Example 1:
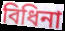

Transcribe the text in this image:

বিধিনা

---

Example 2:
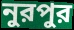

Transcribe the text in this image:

নুরপুর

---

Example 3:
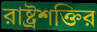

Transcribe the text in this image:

রাষ্ট্রশক্তির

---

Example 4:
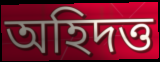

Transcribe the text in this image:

অহিদত্ত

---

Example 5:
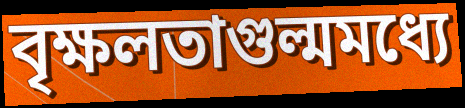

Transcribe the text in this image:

বৃক্ষলতাগুল্মমধ্যে